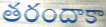
తరందాకా